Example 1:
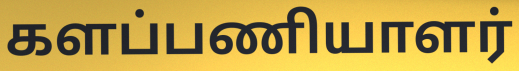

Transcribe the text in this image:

களப்பணியாளர்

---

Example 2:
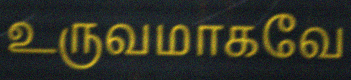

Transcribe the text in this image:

உருவமாகவே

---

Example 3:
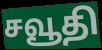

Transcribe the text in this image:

சவூதி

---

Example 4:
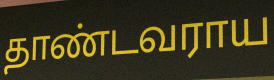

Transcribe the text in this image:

தாண்டவராய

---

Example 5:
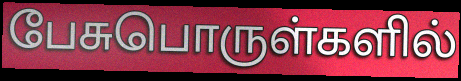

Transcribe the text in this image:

பேசுபொருள்களில்